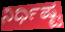
ನಿರ್ಧಿಷ್ಟ